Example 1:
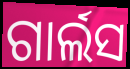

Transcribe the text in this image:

ଗାର୍ଲସ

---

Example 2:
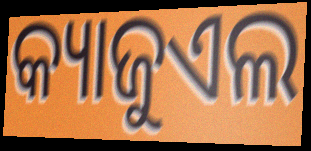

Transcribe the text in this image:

କ୍ୟାଜୁଏଲ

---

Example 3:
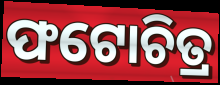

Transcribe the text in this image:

ଫଟୋଚିତ୍ର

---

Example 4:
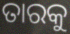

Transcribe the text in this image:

ତାରକୁ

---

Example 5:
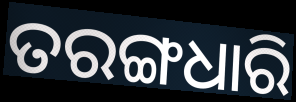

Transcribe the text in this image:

ତରଙ୍ଗଧାରି